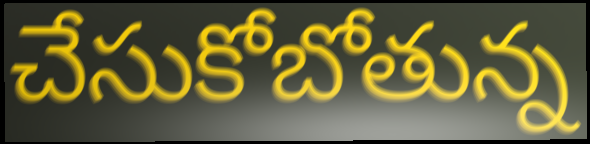
చేసుకోబోతున్న